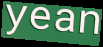
yean